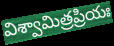
విశ్వామిత్రప్రియః